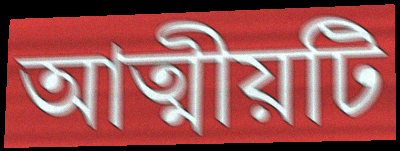
আত্মীয়টি